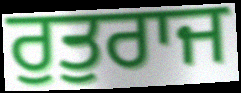
ਰੁਤੁਰਾਜ